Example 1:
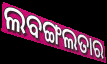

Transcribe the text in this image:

ଲବଙ୍ଗଲତାର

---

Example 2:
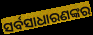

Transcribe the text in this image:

ସର୍ବସାଧାରଣଙ୍କର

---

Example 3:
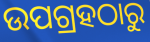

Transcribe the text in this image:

ଉପଗ୍ରହଠାରୁ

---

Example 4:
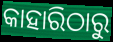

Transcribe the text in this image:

କାହାରିଠାରୁ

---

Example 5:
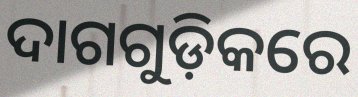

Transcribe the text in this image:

ଦାଗଗୁଡ଼ିକରେ